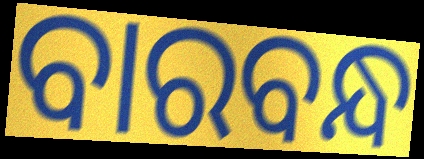
ବାରବନ୍ଧ